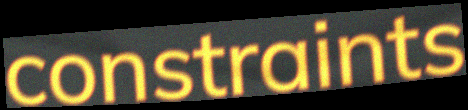
constraints